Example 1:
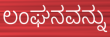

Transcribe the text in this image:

ಲಂಘನವನ್ನು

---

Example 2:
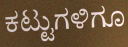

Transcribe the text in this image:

ಕಟ್ಟುಗಳಿಗೂ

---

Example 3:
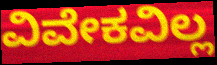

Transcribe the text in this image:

ವಿವೇಕವಿಲ್ಲ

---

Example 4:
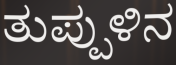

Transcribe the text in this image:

ತುಪ್ಪುಳಿನ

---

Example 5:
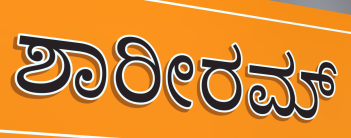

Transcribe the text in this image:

ಶಾರೀರಮ್